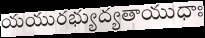
యయురభ్యుద్యతాయుధాః